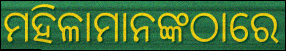
ମହିଳାମାନଙ୍କଠାରେ